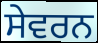
ਸੇਵਰਨ